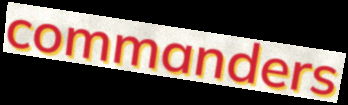
commanders